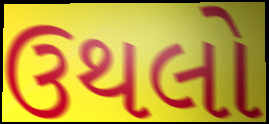
ઉથલો